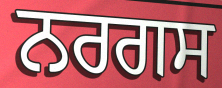
ਨਰਗਸ